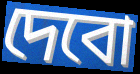
দেবো